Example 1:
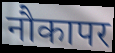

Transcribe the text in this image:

नौकापर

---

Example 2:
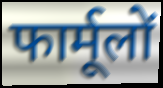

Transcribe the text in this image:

फार्मूलों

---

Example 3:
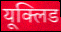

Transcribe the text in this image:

यूक्लिड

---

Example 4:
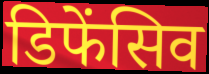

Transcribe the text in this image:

डिफेंसिव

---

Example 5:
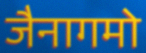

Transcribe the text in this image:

जैनागमो